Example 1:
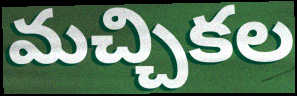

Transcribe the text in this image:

మచ్చికల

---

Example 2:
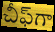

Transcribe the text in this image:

చీఫ్‌గా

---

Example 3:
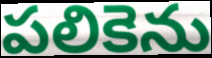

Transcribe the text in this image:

పలికెను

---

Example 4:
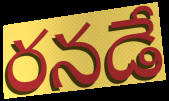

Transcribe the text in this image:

రనడే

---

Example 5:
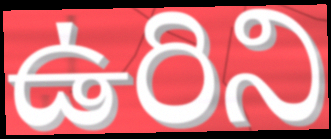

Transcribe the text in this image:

ఉరిని